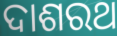
ଦାଶରଥ